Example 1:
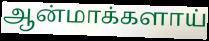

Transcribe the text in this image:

ஆன்மாக்களாய்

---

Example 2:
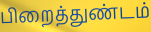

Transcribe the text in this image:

பிறைத்துண்டம்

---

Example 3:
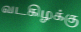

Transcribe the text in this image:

வடகிழக்கு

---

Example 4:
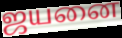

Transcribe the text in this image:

ஜயனை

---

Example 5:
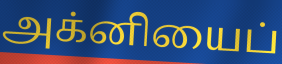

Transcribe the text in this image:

அக்னியைப்